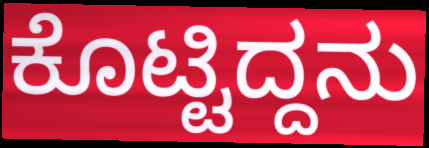
ಕೊಟ್ಟಿದ್ದನು